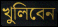
খুলিবেন